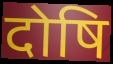
दोषि